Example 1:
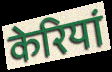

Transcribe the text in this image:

केरियां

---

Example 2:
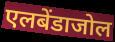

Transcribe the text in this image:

एलबेंडाजोल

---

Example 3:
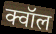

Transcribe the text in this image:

क्वॉल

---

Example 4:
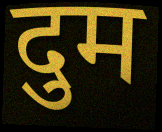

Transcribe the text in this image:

दुम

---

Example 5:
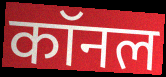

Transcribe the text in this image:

कॉनल